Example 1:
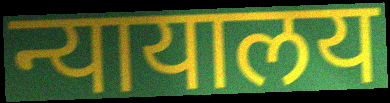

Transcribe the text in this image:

न्यायालय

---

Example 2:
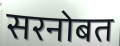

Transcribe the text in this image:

सरनोबत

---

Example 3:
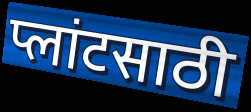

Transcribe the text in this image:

प्लांटसाठी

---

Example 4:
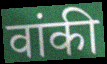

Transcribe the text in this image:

वांकी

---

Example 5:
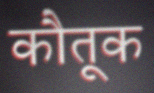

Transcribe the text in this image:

कौतूक